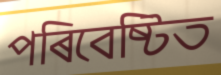
পৰিবেষ্টিত